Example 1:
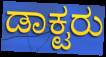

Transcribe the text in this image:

ಡಾಕ್ಟರು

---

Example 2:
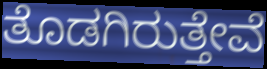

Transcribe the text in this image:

ತೊಡಗಿರುತ್ತೇವೆ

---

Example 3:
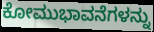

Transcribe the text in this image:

ಕೋಮುಭಾವನೆಗಳನ್ನು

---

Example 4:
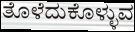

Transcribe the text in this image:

ತೊಳೆದುಕೊಳ್ಳುವ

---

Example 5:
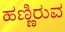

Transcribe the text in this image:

ಹಣ್ಣಿರುವ